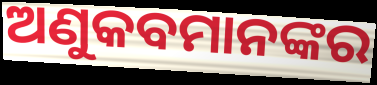
ଅଣୁକବମାନଙ୍କର